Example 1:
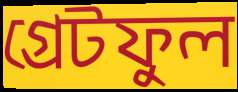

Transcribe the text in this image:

গ্ৰেটফুল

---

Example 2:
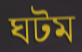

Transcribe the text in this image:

ঘটম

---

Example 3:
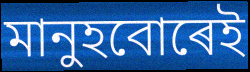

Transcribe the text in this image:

মানুহবোৰেই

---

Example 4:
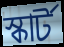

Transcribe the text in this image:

স্কাৰ্ট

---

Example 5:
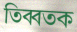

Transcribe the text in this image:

তিব্বতক